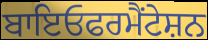
ਬਾਇਓਫਰਮੈਂਟੇਸ਼ਨ